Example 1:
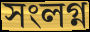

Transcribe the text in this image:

সংলগ্ন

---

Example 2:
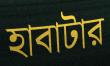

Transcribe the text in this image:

হাবাটার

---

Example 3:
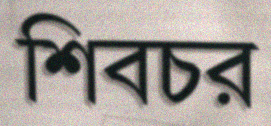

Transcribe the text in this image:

শিবচর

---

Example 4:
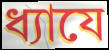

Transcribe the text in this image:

ধ্যাযে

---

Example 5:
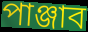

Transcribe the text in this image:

পাঞ্জাব